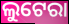
ଲୁଟେରା